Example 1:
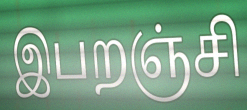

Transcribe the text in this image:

இபறஞ்சி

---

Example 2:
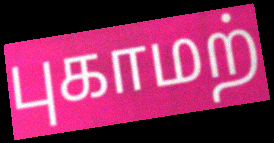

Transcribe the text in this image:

புகாமற்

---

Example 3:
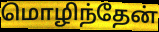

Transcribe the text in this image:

மொழிந்தேன்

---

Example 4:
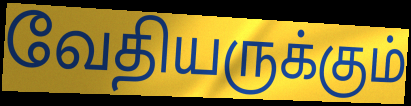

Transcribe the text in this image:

வேதியருக்கும்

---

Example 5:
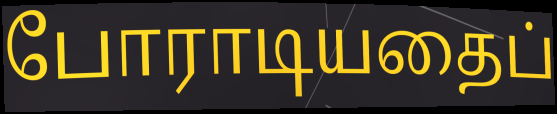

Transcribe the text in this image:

போராடியதைப்